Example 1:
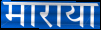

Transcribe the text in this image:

माराया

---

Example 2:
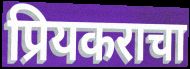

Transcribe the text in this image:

प्रियकराचा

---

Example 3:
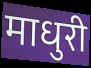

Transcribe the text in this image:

माधुरी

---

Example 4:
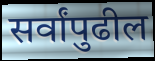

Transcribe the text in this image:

सर्वांपुढील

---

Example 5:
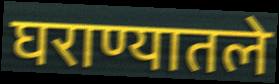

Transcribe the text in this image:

घराण्यातले